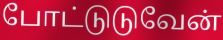
போட்டுடுவேன்